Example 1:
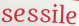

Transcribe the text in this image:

sessile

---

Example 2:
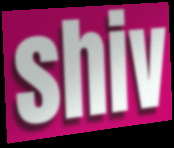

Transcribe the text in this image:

shiv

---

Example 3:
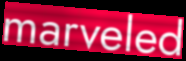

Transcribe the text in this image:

marveled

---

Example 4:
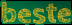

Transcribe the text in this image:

beste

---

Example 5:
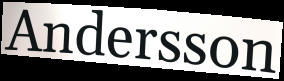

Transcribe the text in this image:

Andersson